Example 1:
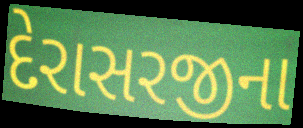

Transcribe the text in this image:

દેરાસરજીના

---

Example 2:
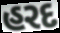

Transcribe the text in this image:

હરદ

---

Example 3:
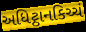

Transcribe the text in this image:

અધિટ્ઠાનકિચ્ચં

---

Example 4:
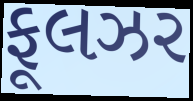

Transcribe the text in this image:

ફૂલઝર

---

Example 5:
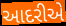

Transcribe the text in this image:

આદરીએ